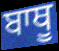
ਬਾਥੂ